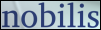
nobilis